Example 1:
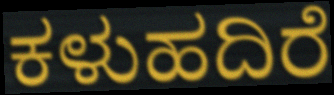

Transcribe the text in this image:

ಕಳುಹದಿರೆ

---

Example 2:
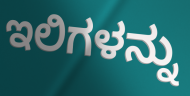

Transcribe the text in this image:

ಇಲಿಗಳನ್ನು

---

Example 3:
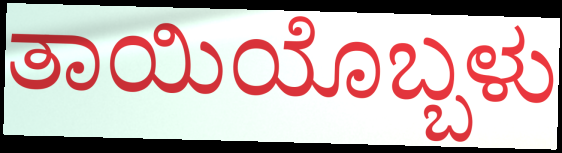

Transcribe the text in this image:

ತಾಯಿಯೊಬ್ಬಳು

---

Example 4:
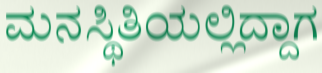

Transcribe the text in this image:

ಮನಸ್ಥಿತಿಯಲ್ಲಿದ್ದಾಗ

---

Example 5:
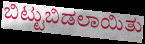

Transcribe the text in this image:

ಬಿಟ್ಟುಬಿಡಲಾಯಿತು